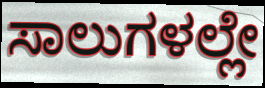
ಸಾಲುಗಳಲ್ಲೇ